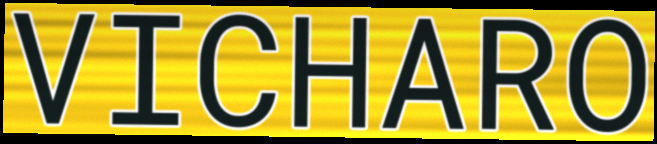
VICHARO